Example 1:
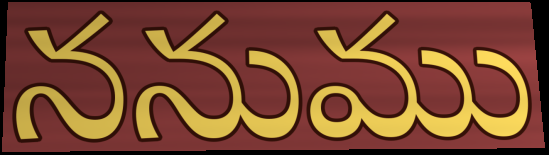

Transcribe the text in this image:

ననుము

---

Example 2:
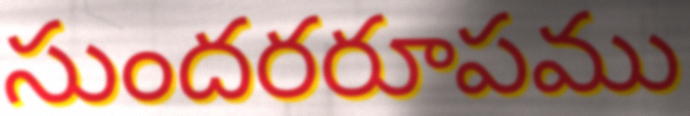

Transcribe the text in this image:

సుందరరూపము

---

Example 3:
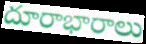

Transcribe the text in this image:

దూరాభారాలు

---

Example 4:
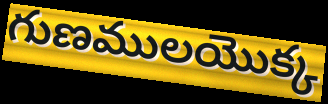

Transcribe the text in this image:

గుణములయొక్క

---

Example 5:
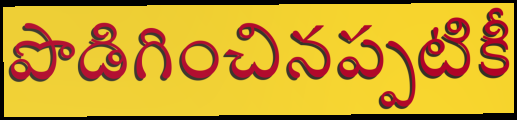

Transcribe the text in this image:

పొడిగించినప్పటికీ